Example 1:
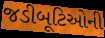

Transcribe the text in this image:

જડીબૂટિઓની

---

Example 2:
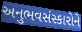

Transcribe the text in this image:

અનુભવસંસ્કારોને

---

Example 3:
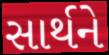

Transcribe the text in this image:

સાર્થને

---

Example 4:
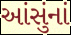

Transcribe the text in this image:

આંસુંનાં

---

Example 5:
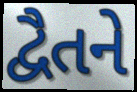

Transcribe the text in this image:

દ્વૈતને